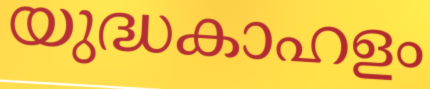
യുദ്ധകാഹളം